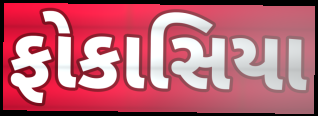
ફોકાસિયા